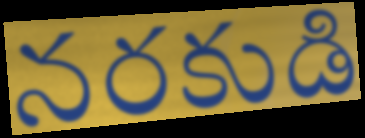
నరకుడి